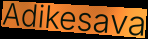
Adikesava